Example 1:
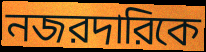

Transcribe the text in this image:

নজরদারিকে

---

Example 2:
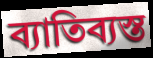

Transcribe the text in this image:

ব্যাতিব্যস্ত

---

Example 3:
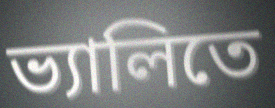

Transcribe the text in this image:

ভ্যালিতে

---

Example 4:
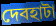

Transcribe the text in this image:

দেবহাটা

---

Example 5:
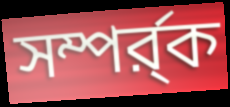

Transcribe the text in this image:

সম্পর্র্ক